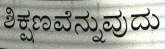
ಶಿಕ್ಷಣವೆನ್ನುವುದು